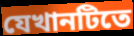
যেখানটিতে